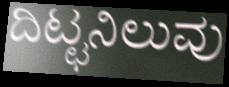
ದಿಟ್ಟನಿಲುವು